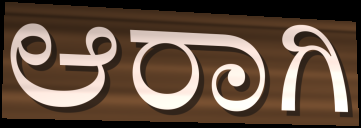
ಆರಾಗಿ